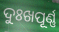
ଦୁଃଖପୂର୍ଣ୍ଣ